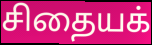
சிதையக்